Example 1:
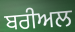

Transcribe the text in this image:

ਬਰੀਅਲ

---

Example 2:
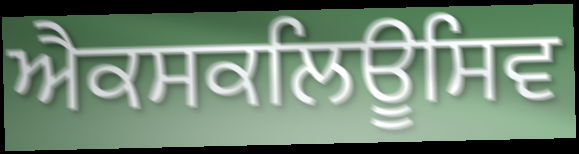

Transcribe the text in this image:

ਐਕਸਕਲਿਊਸਿਵ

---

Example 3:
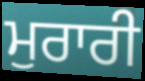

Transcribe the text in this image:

ਮੁਰਾਰੀ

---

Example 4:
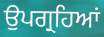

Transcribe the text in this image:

ਉਪਗ੍ਰਹਿਆਂ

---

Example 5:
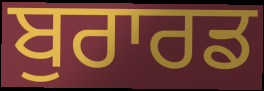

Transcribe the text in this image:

ਬੁਰਾਰਡ